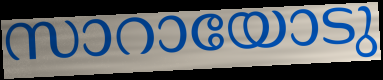
സാറായോടു